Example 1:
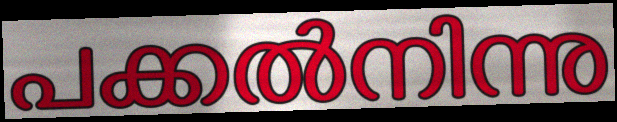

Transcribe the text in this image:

പക്കൽനിന്നു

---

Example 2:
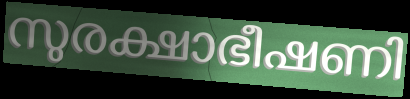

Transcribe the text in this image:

സുരക്ഷാഭീഷണി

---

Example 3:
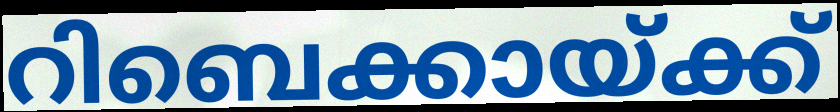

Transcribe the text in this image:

റിബെക്കായ്ക്ക്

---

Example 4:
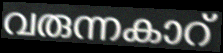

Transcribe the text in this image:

വരുന്നകാറ്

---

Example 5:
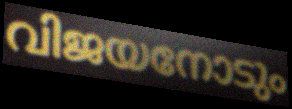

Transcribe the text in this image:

വിജയനോടും